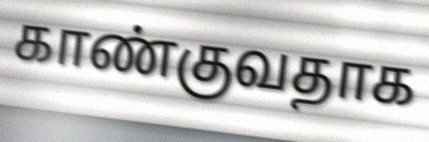
காண்குவதாக